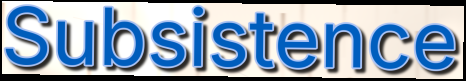
Subsistence